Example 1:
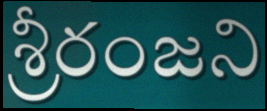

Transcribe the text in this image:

శ్రీరంజని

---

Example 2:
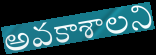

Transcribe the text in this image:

అవకాశాలని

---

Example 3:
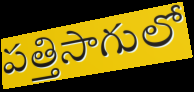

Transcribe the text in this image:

పత్తిసాగులో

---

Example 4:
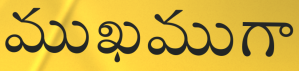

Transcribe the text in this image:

ముఖముగా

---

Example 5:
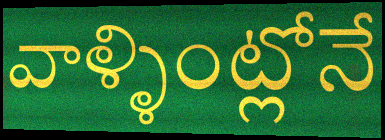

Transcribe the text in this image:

వాళ్ళింట్లోనే